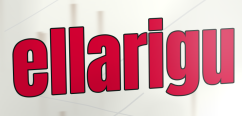
ellarigu